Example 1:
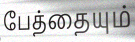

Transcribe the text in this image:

பேத்தையும்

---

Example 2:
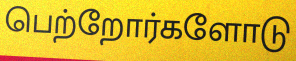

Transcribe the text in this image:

பெற்றோர்களோடு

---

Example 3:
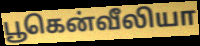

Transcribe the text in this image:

பூகென்வீலியா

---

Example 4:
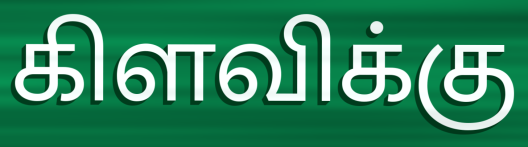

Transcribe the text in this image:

கிளவிக்கு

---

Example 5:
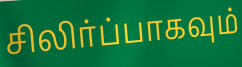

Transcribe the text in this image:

சிலிர்ப்பாகவும்